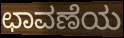
ಛಾವಣೆಯ